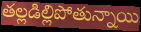
తల్లడిల్లిపోతున్నాయి